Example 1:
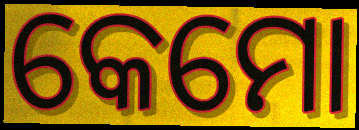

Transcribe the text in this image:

କେମୋ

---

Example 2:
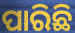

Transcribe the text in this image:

ପାରିଛି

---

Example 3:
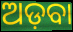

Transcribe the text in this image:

ଅଡ଼ବା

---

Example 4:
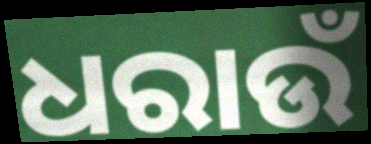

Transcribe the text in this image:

ଧରାଉଁ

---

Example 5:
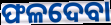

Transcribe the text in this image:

ଫଳଦେବା